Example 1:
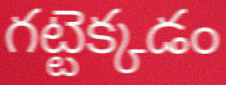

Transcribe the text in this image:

గట్టెక్కడం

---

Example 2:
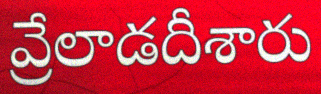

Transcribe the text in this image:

వ్రేలాడదీశారు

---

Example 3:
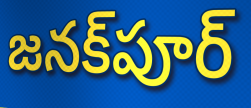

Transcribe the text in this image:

జనక్‌పూర్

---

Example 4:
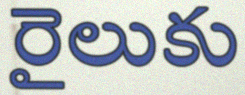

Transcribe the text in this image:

రైలుకు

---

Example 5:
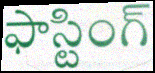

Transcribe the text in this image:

ఫాస్టింగ్